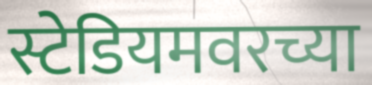
स्टेडियमवरच्या